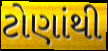
ટોણાંથી